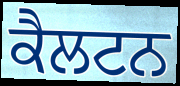
ਕੈਲਟਨ